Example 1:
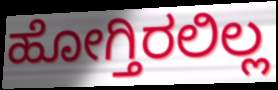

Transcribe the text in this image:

ಹೋಗ್ತಿರಲಿಲ್ಲ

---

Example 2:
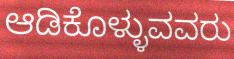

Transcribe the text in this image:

ಆಡಿಕೊಳ್ಳುವವರು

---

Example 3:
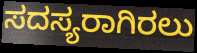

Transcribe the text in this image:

ಸದಸ್ಯರಾಗಿರಲು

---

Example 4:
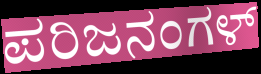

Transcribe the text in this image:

ಪರಿಜನಂಗಳ್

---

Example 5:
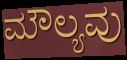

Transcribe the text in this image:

ಮೌಲ್ಯವು